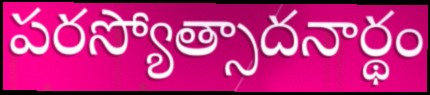
పరస్యోత్సాదనార్థం